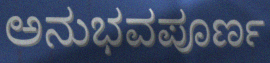
ಅನುಭವಪೂರ್ಣ